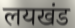
लयखंड